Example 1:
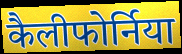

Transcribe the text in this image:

कैलीफोर्निया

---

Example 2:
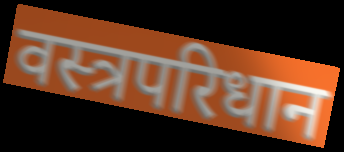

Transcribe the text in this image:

वस्त्रपरिधान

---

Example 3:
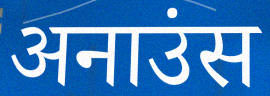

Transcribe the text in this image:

अनाउंस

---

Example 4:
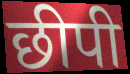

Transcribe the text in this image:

छीपी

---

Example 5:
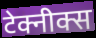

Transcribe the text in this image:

टेक्नीक्स